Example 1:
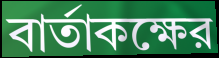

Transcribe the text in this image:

বার্তাকক্ষের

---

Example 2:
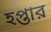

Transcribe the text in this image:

হপ্তার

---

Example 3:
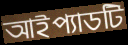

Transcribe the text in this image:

আইপ্যাডটি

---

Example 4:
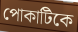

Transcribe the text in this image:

পোকাটিকে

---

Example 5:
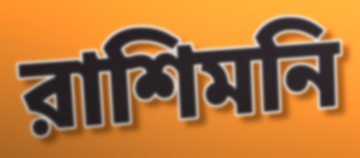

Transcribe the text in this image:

রাশিমনি